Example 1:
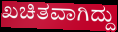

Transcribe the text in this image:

ಖಚಿತವಾಗಿದ್ದು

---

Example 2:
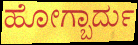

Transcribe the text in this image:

ಹೋಗ್ಬಾರ್ದು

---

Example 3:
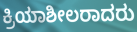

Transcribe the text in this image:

ಕ್ರಿಯಾಶೀಲರಾದರು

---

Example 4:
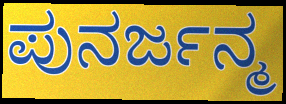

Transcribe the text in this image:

ಪುನರ್ಜನ್ಮ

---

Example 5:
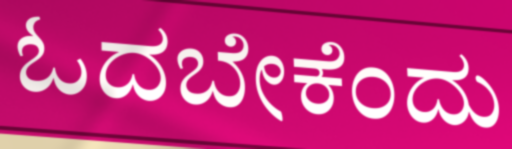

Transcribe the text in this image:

ಓದಬೇಕೆಂದು